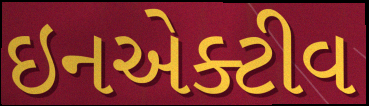
ઇનએક્ટીવ